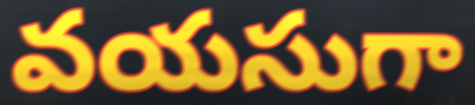
వయసుగా